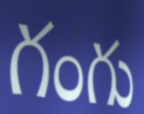
గంగు